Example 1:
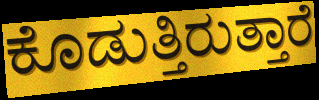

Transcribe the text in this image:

ಕೊಡುತ್ತಿರುತ್ತಾರೆ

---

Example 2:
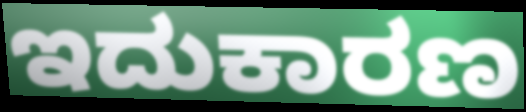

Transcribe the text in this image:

ಇದುಕಾರಣ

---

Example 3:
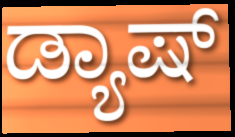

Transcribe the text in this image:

ಡ್ಯಾಷ್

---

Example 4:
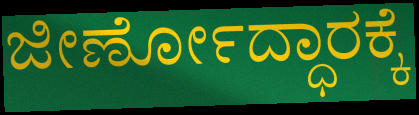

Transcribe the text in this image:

ಜೀರ್ಣೋದ್ಧಾರಕ್ಕೆ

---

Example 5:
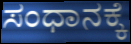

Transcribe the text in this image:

ಸಂಧಾನಕ್ಕೆ